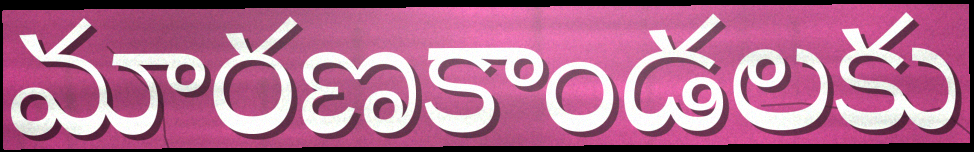
మారణకాండలకు